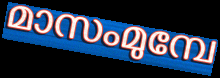
മാസംമുമ്പേ